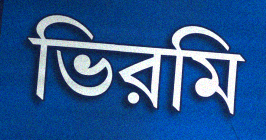
ভিরমি